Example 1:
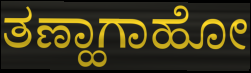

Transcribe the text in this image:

ತಣ್ಹಾಗಾಹೋ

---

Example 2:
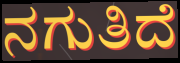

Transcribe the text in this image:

ನಗುತಿದೆ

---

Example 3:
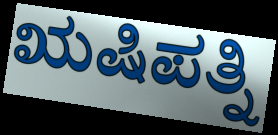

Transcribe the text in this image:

ಋಷಿಪತ್ನಿ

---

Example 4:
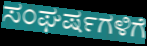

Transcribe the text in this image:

ಸಂಘರ್ಷಗಳಿಗೆ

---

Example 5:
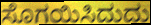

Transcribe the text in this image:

ಸೊಗಯಿಸಿದುದು